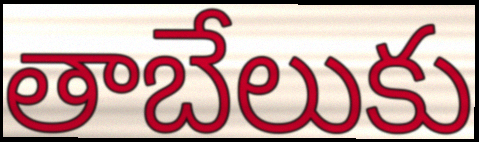
తాబేలుకు